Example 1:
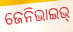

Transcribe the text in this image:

ଜେନିଭାଇଭ୍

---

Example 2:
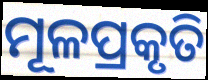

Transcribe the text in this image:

ମୂଳପ୍ରକୃତି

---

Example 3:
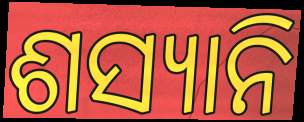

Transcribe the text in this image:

ଶସ୍ୟାନି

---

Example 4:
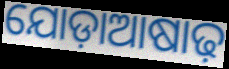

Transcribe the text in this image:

ଯୋଡ଼ାଆଷାଢ଼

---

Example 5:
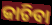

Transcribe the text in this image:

କାଚିବା